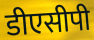
डीएसीपी